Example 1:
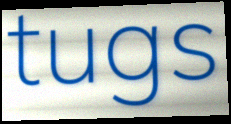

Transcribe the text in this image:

tugs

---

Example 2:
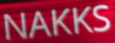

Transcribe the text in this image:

NAKKS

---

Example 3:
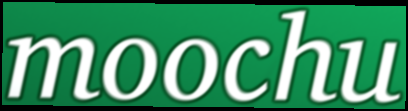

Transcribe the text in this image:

moochu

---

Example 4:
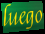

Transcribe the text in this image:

luego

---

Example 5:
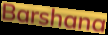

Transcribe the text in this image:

Barshana